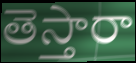
తెస్తారా